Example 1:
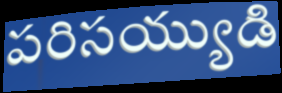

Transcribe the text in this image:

పరిసయ్యుడి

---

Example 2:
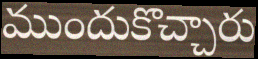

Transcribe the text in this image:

ముందుకొచ్చారు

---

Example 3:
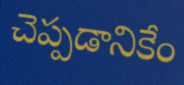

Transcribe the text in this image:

చెప్పడానికేం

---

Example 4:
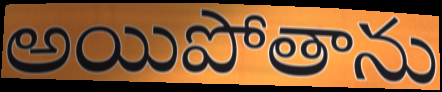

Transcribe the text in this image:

అయిపోతాను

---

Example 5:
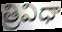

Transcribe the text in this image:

త్రివిధా